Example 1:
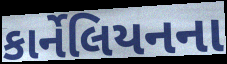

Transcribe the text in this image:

કાર્નેલિયનના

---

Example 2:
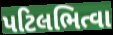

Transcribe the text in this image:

પટિલભિત્વા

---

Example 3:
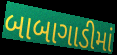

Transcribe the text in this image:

બાબાગાડીમાં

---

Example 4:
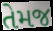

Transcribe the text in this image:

તેમજ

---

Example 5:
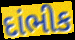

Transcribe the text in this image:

દાંભીક